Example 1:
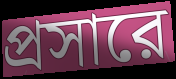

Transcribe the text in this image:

প্রসারে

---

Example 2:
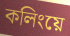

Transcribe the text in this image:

কলিংয়ে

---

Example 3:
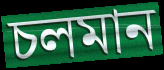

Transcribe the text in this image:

চলমান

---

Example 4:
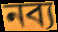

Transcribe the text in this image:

নব্য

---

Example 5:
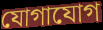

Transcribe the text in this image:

যোগাযোগ